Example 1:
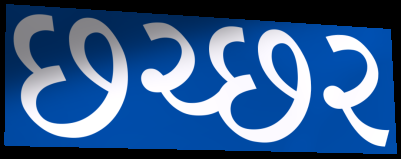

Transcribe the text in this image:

છચ્છર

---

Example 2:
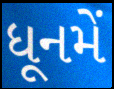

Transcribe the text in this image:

ધૂનમેં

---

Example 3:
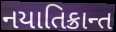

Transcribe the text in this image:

નયાતિક્રાન્ત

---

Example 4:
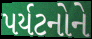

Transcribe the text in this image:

પર્યટનોને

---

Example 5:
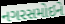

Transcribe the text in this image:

નગરસમોઇને